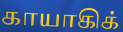
காயாகிக்